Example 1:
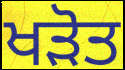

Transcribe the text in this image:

ਖੜੋਤ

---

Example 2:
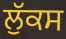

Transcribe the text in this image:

ਲੁੱਕਸ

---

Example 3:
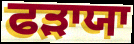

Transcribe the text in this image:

ਫੜਾਯਾ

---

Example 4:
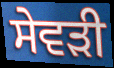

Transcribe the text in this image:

ਸੇਵੜੀ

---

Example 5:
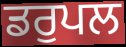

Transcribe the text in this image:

ਡਰੁਪਲ